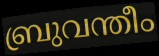
ബ്രുവന്തീം